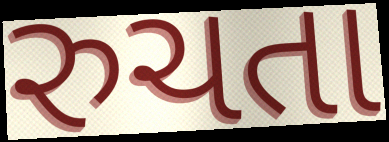
રુચતા